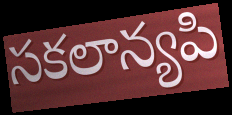
సకలాన్యపి